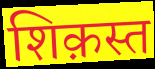
शिक़स्त